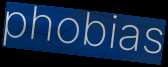
phobias